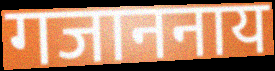
गजाननाय